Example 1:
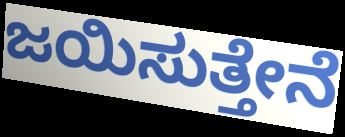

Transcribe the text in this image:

ಜಯಿಸುತ್ತೇನೆ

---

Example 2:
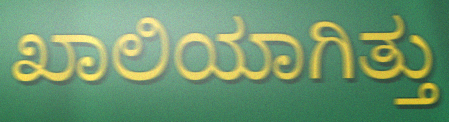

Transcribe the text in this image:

ಖಾಲಿಯಾಗಿತ್ತು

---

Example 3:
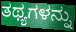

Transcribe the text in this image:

ತಥ್ಯಗಳನ್ನು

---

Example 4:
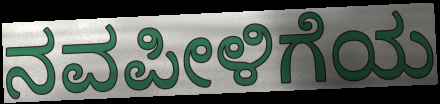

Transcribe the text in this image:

ನವಪೀಳಿಗೆಯ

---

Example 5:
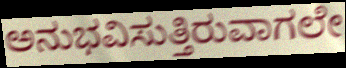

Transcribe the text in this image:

ಅನುಭವಿಸುತ್ತಿರುವಾಗಲೇ